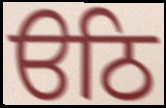
ੳਠਿ